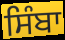
ਸਿੰਬਾ